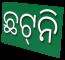
ଛଟ୍‌ନି